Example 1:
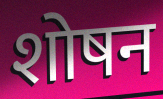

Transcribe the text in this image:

शोषन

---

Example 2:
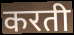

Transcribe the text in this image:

करती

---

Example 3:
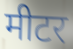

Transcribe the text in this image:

मीटर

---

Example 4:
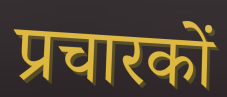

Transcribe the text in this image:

प्रचारकों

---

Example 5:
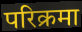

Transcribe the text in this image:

परिक्रमा